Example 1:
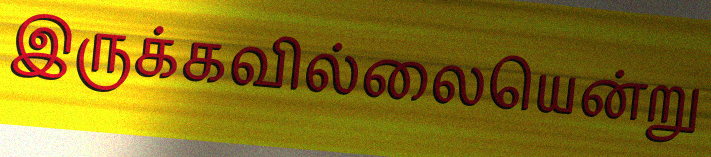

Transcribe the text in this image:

இருக்கவில்லையென்று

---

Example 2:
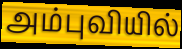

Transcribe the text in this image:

அம்புவியில்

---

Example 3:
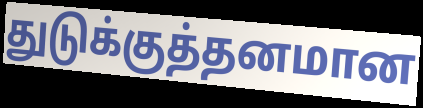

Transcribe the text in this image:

துடுக்குத்தனமான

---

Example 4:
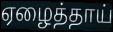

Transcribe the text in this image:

ஏழைத்தாய்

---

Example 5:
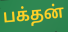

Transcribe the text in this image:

பக்தன்